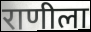
राणीला